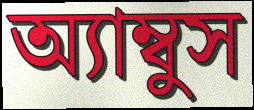
অ্যাম্বুস